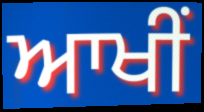
ਆਖੀਂ